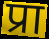
प्रा